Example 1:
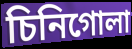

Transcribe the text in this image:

চিনিগোলা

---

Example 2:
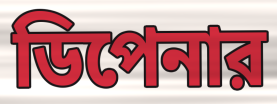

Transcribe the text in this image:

ডিপেনার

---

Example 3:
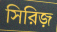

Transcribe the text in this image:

সিরিজ়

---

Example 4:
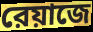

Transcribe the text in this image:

রেয়াজে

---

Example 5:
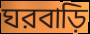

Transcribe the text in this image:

ঘরবাড়ি